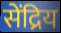
सेंद्रिय